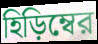
হিড়িম্বের